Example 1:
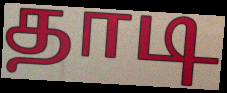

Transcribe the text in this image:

தாடி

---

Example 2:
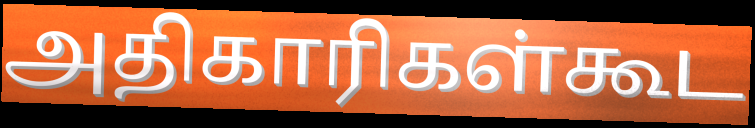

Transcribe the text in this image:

அதிகாரிகள்கூட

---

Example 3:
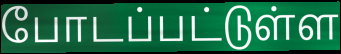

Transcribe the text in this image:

போடப்பட்டுள்ள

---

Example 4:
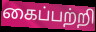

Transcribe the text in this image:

கைப்பற்றி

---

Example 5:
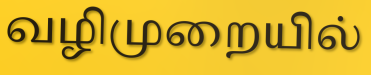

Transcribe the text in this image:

வழிமுறையில்